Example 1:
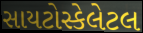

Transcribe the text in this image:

સાયટોસ્કેલેટલ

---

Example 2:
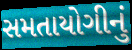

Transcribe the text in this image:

સમતાયોગીનું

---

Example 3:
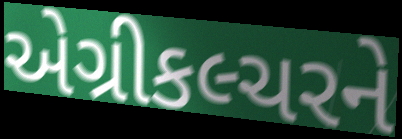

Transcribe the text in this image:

એગ્રીકલ્ચરને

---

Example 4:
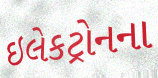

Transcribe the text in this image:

ઇલેકટ્રોનના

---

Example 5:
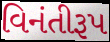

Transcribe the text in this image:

વિનંતીરૂપ